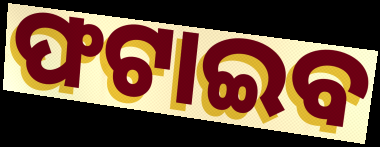
ଫଟାଇବ